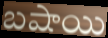
బషాయి